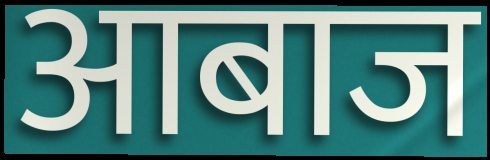
आबाज